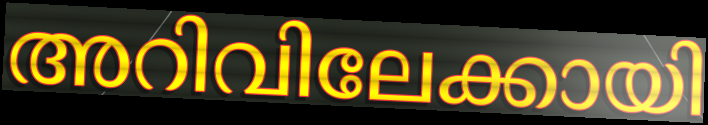
അറിവിലേക്കായി